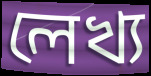
লেখ্য